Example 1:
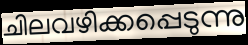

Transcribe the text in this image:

ചിലവഴിക്കപ്പെടുന്നു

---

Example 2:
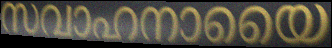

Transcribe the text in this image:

സവാഹനായൈ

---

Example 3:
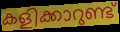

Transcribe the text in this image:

കളിക്കാറുണ്ട്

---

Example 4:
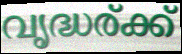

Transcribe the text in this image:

വൃദ്ധര്ക്ക്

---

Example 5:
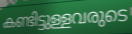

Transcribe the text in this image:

കണ്ടിട്ടുള്ളവരുടെ